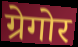
ग्रेगोर